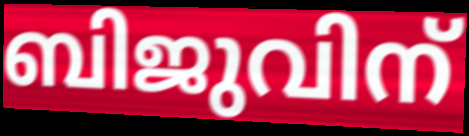
ബിജുവിന്